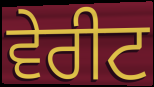
ਵੇਰੀਟ